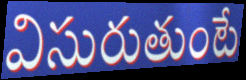
విసురుతుంటే